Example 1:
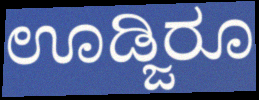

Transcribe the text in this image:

ಊಡ್ಜಿರೂ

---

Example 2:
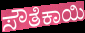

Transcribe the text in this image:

ಸೌತೆಕಾಯಿ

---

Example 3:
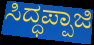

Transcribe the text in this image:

ಸಿದ್ಧಪ್ಪಾಜಿ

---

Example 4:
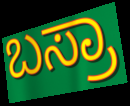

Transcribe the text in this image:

ಬಸ್ರಾ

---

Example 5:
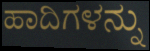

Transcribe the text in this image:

ಹಾದಿಗಳನ್ನು